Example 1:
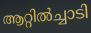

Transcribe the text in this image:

ആറ്റിൽച്ചാടി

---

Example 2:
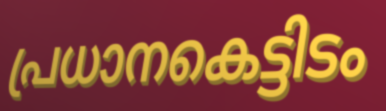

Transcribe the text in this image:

പ്രധാനകെട്ടിടം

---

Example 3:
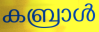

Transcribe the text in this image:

കബ്രാൾ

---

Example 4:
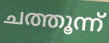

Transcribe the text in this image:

ചത്തൂന്ന്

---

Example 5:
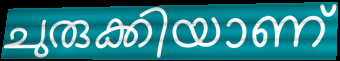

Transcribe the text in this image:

ചുരുക്കിയാണ്